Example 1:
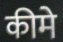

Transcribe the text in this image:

कीमे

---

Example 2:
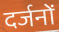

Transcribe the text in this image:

दर्जनों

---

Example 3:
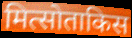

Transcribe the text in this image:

मित्सोताकिस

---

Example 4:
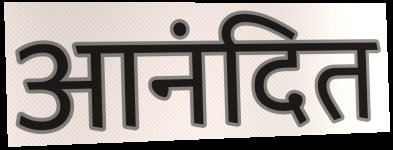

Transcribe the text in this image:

आनंदित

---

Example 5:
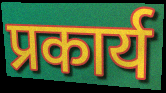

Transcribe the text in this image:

प्रकार्य